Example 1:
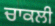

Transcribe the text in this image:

ਚਾਕਲੀ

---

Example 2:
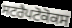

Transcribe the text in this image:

ਸਟਰੈਪਟੋਕੋਕਸ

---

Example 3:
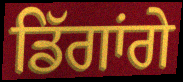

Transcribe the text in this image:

ਡਿੱਗਾਂਗੇ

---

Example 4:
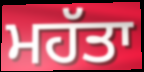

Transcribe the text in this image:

ਮਹੱਤਾ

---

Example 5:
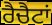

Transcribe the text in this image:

ਰੈਚੈਟਾਂ